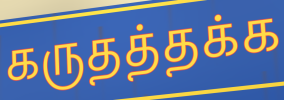
கருதத்தக்க